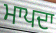
ਮਾਪਦਾ